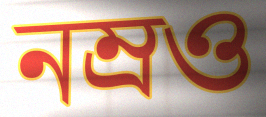
নম্রও